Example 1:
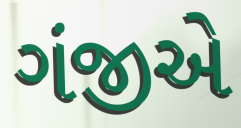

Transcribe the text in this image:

ગંજીએ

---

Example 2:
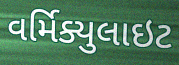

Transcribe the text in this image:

વર્મિક્યુલાઇટ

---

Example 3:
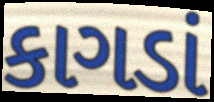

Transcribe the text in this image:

કાગડાં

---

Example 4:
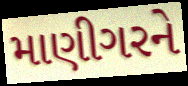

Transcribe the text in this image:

માણીગરને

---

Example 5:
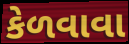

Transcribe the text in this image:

કેળવાવા